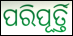
ପରିପୂର୍ତ୍ତି